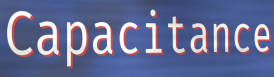
Capacitance